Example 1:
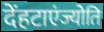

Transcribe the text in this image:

देंहटाएंज्योति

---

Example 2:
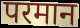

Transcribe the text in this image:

परमान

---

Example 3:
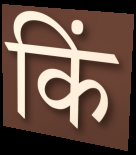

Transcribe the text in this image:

किं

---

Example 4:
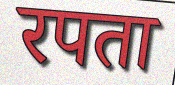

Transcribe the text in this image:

रपता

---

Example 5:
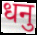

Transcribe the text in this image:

धनु